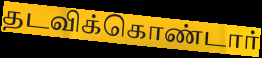
தடவிக்கொண்டார்